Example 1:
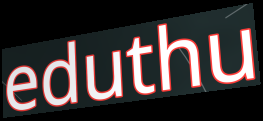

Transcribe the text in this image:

eduthu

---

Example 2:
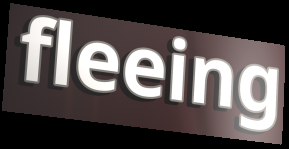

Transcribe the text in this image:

fleeing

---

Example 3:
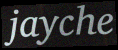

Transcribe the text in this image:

jayche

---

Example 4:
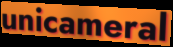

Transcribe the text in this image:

unicameral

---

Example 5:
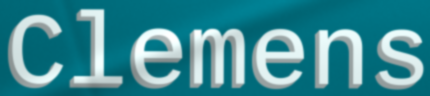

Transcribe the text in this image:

Clemens